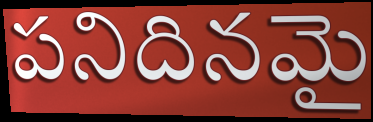
పనిదినమై